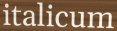
italicum